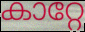
കാറ്റേ